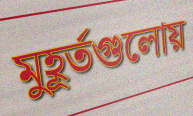
মুহূর্তগুলোয়